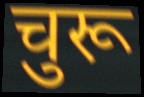
चुरू